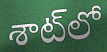
శాట్‌లో